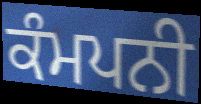
ਕੰਮਪਨੀ